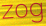
zog